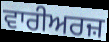
ਵਾਰੀਅਰਜ਼